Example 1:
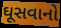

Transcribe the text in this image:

ઘૂસવાનો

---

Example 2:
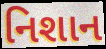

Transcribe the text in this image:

નિશાન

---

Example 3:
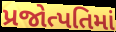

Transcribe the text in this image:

પ્રજોત્પતિમાં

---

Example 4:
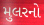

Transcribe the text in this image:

મુલરનો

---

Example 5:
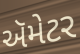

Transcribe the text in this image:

ઍમેટર